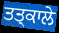
ਤਤ੍ਕਾਲੇ